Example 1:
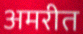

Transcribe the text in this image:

अमरीत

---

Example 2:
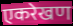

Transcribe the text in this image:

एकरेखण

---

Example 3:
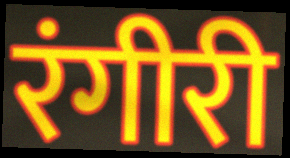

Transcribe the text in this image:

रंगीरी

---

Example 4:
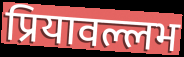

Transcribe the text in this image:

प्रियावल्लभ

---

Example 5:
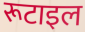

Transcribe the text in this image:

रूटाइल